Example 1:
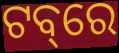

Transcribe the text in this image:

ଟବ୍‌ରେ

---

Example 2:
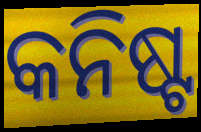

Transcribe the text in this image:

କନିଷ୍ଟ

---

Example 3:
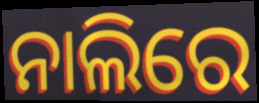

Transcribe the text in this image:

ନାଲିରେ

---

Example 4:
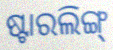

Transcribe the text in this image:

ଷ୍ଟାରଲିଙ୍ଗ୍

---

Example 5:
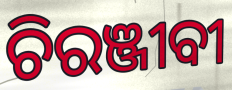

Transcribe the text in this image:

ଚିରଞ୍ଜୀବୀ